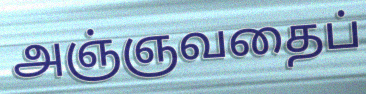
அஞ்ஞவதைப்